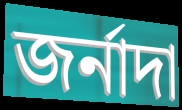
জর্নাদা